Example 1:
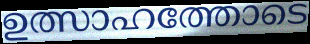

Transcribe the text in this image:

ഉത്സാഹത്തോടെ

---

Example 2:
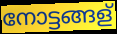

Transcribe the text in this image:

നോട്ടങ്ങള്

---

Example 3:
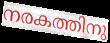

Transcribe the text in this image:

നരകത്തിനു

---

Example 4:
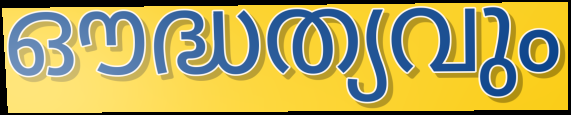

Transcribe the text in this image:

ഔദ്ധത്യവും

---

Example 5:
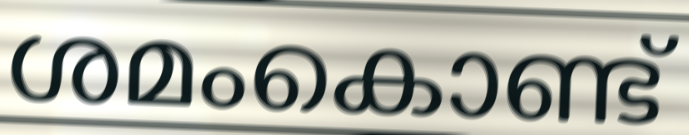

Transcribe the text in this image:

ശമംകൊണ്ട്